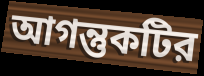
আগন্তুকটির